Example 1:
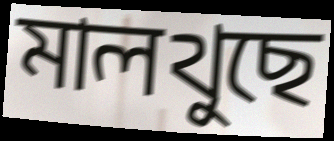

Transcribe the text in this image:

মালথুছে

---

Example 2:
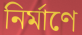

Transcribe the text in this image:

নিৰ্মাণে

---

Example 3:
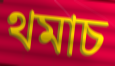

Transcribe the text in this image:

থমাচ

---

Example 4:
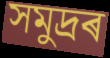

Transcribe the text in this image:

সমুদ্ৰৰ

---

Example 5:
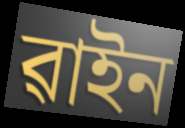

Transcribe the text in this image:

ৱাইন